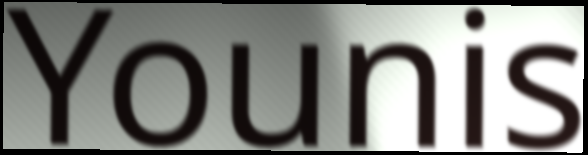
Younis